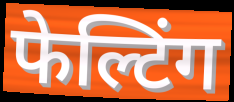
फेल्टिंग